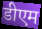
डीएम